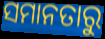
ସମାନତାରୁ